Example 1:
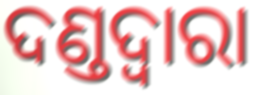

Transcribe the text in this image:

ଦଣ୍ଡଦ୍ବାରା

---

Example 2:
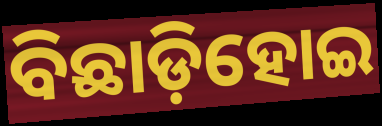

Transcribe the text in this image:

ବିଛାଡ଼ିହୋଇ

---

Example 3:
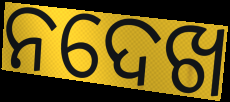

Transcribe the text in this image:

ନଦେଖ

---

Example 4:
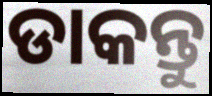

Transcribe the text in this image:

ଡାକନ୍ତୁ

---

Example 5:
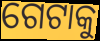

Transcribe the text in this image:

ଗେଟାକୁ